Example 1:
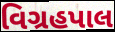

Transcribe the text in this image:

વિગ્રહપાલ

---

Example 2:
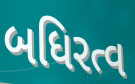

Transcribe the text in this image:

બધિરત્વ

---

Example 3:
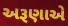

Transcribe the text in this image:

અરૂણાએ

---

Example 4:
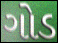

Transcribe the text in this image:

ગોડ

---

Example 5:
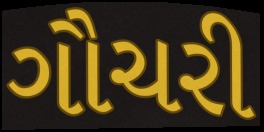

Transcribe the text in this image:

ગૌચરી